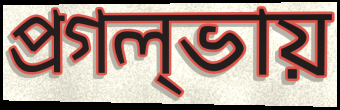
প্রগল্‌ভায়